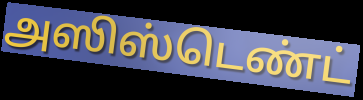
அஸிஸ்டெண்ட்